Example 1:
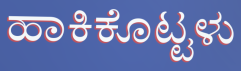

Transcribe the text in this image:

ಹಾಕಿಕೊಟ್ಟಳು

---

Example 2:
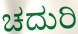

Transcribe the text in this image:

ಚದುರಿ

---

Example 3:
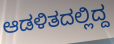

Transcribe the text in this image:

ಆಡಳಿತದಲ್ಲಿದ್ದ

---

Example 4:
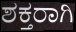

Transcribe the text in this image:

ಶಕ್ತರಾಗಿ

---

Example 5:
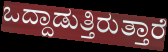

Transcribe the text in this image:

ಒದ್ದಾಡುತ್ತಿರುತ್ತಾರೆ